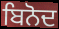
ਬਿਨੋਦ